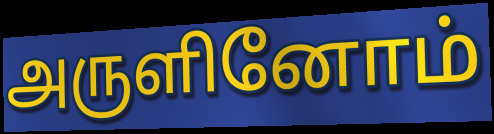
அருளினோம்